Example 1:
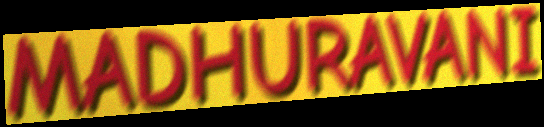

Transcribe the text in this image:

MADHURAVANI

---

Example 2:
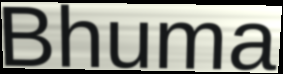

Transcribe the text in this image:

Bhuma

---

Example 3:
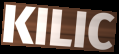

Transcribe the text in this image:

KILIC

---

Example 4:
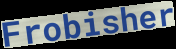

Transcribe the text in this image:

Frobisher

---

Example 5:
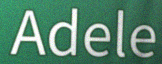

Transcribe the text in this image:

Adele